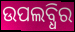
ଉପଲବ୍ଧିର